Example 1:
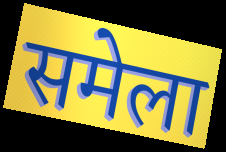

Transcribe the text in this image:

समेला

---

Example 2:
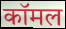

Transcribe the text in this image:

कॉमल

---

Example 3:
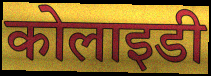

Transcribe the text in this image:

कोलाइडी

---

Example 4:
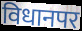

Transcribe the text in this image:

विधानपर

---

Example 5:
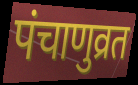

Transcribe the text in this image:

पंचाणुव्रत